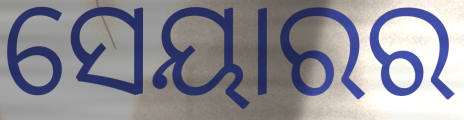
ସେୟାରର